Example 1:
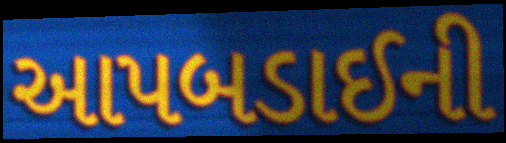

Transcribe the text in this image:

આપબડાઈની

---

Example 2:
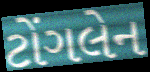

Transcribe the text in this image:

ટોંગલેન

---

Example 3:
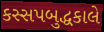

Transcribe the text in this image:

કસ્સપબુદ્ધકાલે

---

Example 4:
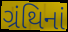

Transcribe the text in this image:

ગ્રંથિનાં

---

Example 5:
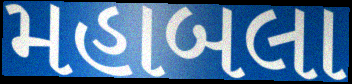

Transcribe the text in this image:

મહાબલા